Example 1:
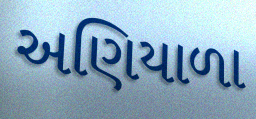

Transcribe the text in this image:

અણિયાળા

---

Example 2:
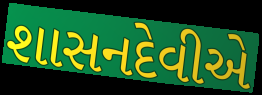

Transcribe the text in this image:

શાસનદેવીએ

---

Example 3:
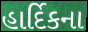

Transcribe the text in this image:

હાર્દિકના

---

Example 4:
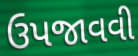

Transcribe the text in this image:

ઉપજાવવી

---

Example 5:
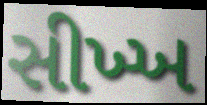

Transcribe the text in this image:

સીખ્ખ